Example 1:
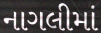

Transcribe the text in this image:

નાગલીમાં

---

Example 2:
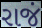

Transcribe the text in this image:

રાજં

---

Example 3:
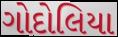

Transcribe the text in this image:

ગોદોલિયા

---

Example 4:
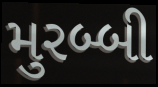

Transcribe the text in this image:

મુરબ્બી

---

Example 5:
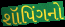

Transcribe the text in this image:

શૉપિંગનો